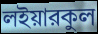
লইয়ারকুল